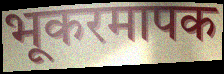
भूकरमापक